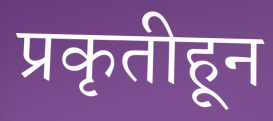
प्रकृतीहून